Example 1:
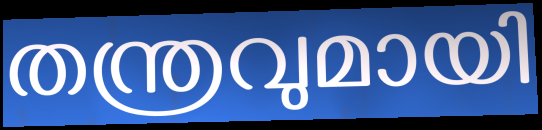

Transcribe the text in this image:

തന്ത്രവുമായി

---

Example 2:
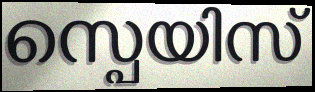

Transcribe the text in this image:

സ്പെയിസ്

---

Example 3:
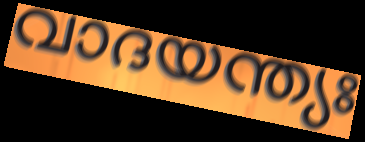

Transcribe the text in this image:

വാദയന്ത്യഃ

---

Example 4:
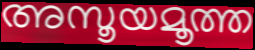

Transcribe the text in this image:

അസൂയമൂത്ത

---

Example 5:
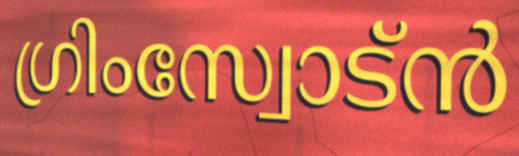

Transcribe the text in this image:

ഗ്രിംസ്വോട്ൻ